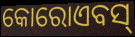
କୋରୋଏବସ୍